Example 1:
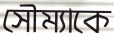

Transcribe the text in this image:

সৌম্যাকে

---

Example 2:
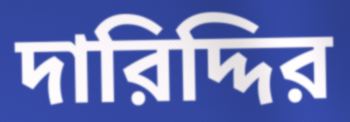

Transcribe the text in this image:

দারিদ্দির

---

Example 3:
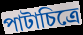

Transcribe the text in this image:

পাটাচিত্রে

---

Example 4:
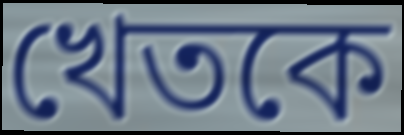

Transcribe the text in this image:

খেতকে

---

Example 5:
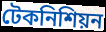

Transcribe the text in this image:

টেকনিশিয়ন